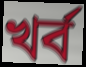
খৰ্ব